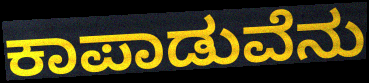
ಕಾಪಾಡುವೆನು